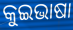
କୁଇଭାଷା